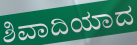
ಶಿವಾದಿಯಾದ